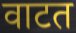
वाटत